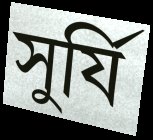
সুর্যি